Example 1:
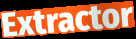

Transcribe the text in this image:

Extractor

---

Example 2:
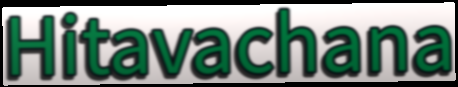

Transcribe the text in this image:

Hitavachana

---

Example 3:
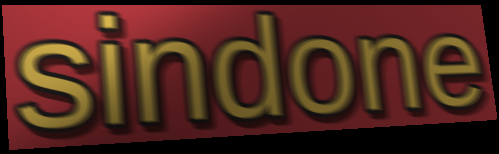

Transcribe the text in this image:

sindone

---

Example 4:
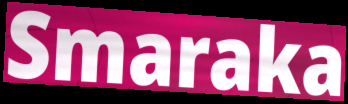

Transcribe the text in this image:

Smaraka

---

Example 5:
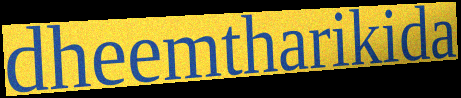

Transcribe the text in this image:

dheemtharikida